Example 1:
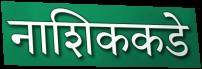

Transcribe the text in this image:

नाशिककडे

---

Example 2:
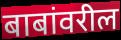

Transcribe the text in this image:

बाबांवरील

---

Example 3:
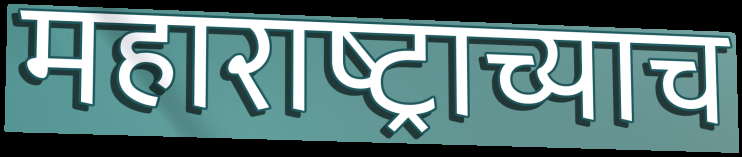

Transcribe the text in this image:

महाराष्ट्राच्याच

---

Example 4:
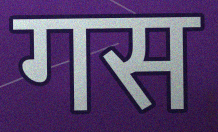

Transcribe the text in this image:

गस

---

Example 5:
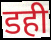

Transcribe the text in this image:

डही